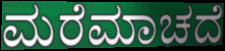
ಮರೆಮಾಚದೆ